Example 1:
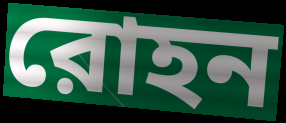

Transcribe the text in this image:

রোহন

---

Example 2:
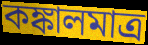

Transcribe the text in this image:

কঙ্কালমাত্র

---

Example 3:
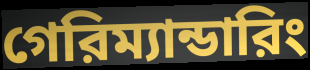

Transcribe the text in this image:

গেরিম্যান্ডারিং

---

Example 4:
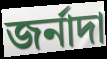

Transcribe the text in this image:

জর্নাদা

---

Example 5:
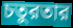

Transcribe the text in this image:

চতুরতার